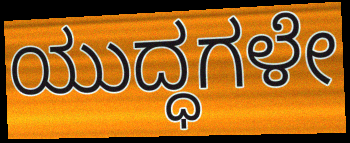
ಯುದ್ಧಗಳೇ